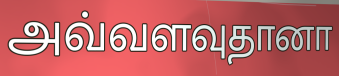
அவ்வளவுதானா